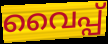
വൈപ്പ്